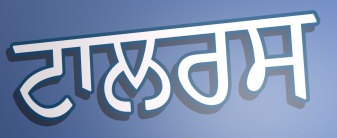
ਟਾਲਰਸ